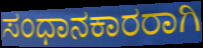
ಸಂಧಾನಕಾರರಾಗಿ